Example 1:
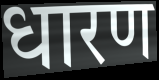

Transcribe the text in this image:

धारण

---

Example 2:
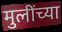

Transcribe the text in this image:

मुलींच्या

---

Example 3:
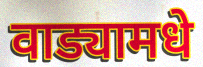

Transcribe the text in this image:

वाड्यामधे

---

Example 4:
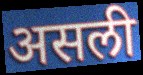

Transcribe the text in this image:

असली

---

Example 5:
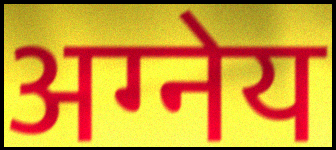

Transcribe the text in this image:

अग्नेय